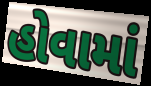
હોવામાં